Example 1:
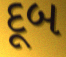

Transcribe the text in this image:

દૂબ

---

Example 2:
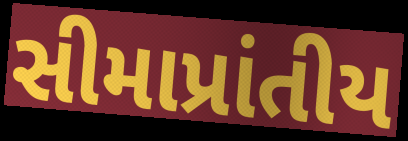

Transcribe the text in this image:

સીમાપ્રાંતીય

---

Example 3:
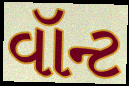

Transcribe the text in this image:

વૉન્ટ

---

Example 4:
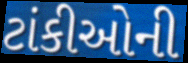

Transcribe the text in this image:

ટાંકીઓની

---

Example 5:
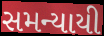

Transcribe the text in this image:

સમન્યાયી